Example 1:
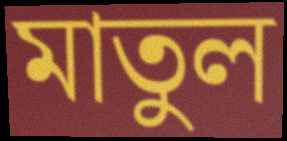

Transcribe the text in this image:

মাতুল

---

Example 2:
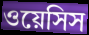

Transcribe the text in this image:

ওয়েসিস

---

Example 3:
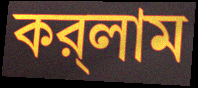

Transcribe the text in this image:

কর্‌লাম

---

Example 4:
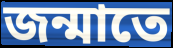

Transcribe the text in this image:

জন্মাতে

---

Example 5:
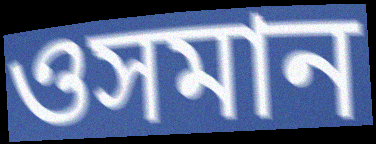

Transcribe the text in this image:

ওসমান